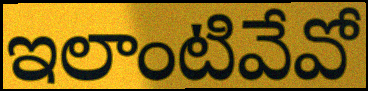
ఇలాంటివేవో